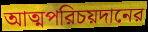
আত্মপরিচয়দানের